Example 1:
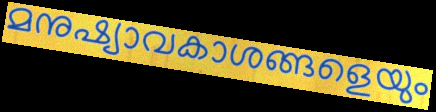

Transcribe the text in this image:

മനുഷ്യാവകാശങ്ങളെയും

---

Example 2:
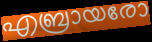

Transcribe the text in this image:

എബ്രായരോ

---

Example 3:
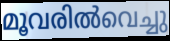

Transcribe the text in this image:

മൂവരിൽവെച്ചു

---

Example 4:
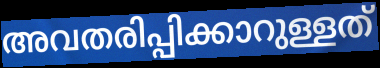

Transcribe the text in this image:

അവതരിപ്പിക്കാറുള്ളത്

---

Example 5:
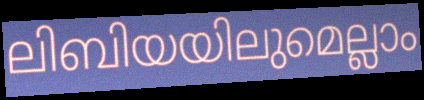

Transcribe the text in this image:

ലിബിയയിലുമെല്ലാം